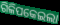
ଗିଳିପକେଇଲା